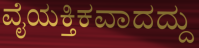
ವೈಯಕ್ತಿಕವಾದದ್ದು